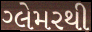
ગ્લેમરથી